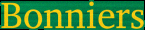
Bonniers